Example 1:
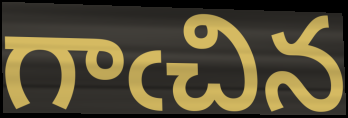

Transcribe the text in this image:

గాఁచిన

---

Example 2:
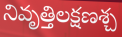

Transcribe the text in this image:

నివృత్తిలక్షణశ్చ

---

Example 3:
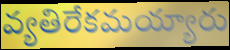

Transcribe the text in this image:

వ్యతిరేకమయ్యారు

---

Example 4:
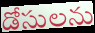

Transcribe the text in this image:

డోసులను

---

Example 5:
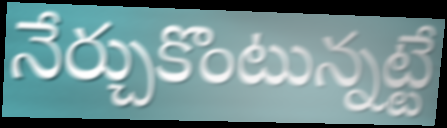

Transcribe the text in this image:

నేర్చుకొంటున్నట్టే